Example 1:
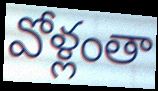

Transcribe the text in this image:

వోళ్లంతా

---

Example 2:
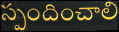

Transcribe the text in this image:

స్పందించాలి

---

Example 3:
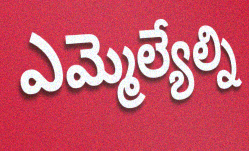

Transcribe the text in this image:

ఎమ్మెల్యేల్ని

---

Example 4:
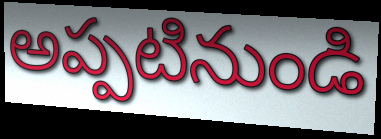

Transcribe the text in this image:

అప్పటినుండి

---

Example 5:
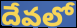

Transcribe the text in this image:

దేవలో